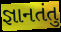
જ્ઞાનતંતુ